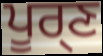
ਪੂਰ੍ਣ